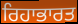
ਰਿਹਾਭਾਰਤ